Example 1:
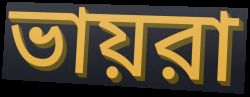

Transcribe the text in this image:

ভায়রা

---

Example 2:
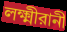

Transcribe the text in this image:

লক্ষ্মীরানী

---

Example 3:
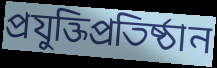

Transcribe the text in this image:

প্রযুক্তিপ্রতিষ্ঠান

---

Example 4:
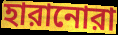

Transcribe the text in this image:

হারানোরা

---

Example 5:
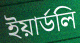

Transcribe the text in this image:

ইয়ার্ডলি